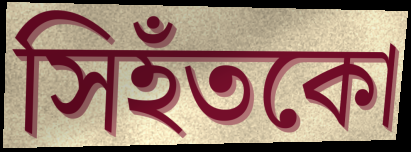
সিহঁতকো